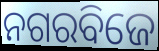
ନଗରବିଜେ